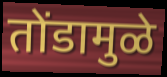
तोंडामुळे